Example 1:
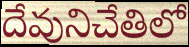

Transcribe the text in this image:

దేవునిచేతిలో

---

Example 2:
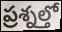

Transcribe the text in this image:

ప్రశ్నల్తో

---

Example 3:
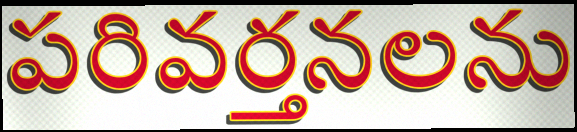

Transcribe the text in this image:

పరివర్తనలను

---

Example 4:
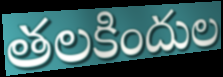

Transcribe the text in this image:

తలకిందుల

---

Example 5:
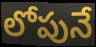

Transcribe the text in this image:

లోపునే